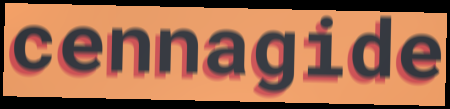
cennagide